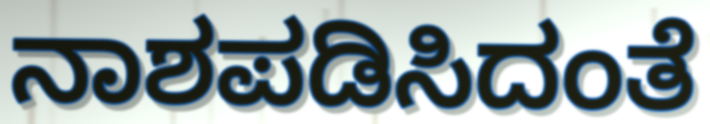
ನಾಶಪಡಿಸಿದಂತೆ